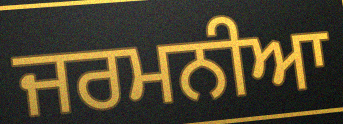
ਜਰਮਨੀਆ